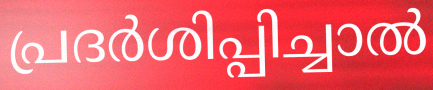
പ്രദർശിപ്പിച്ചാൽ